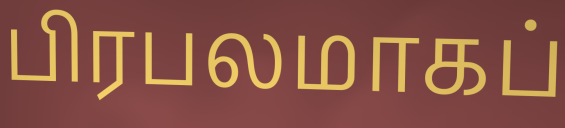
பிரபலமாகப்